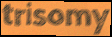
trisomy